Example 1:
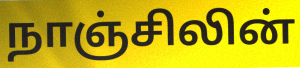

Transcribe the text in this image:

நாஞ்சிலின்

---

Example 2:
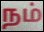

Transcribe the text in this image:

நம்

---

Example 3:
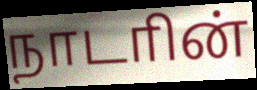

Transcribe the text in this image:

நாடரின்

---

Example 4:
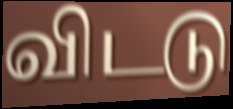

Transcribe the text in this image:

விடடு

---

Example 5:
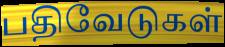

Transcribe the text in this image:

பதிவேடுகள்